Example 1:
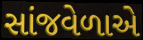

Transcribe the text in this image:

સાંજવેળાએ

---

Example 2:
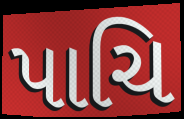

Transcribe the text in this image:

પાચિ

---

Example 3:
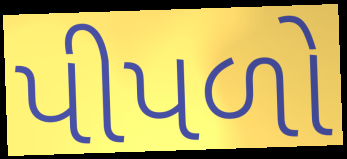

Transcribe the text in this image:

પીપળો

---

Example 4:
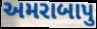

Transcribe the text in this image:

અમરાબાપુ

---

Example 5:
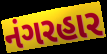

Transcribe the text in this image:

નંગરહાર